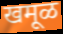
खमूळ